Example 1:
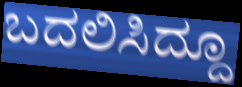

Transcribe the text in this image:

ಬದಲಿಸಿದ್ದೂ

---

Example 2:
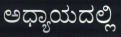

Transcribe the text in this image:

ಅಧ್ಯಾಯದಲ್ಲಿ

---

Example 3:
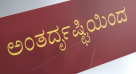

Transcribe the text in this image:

ಅಂತರ್ದೃಷ್ಟಿಯಿಂದ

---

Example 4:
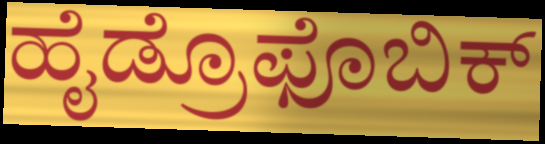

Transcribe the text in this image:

ಹೈಡ್ರೊಫೊಬಿಕ್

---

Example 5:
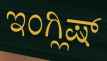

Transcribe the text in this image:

ಇಂಗ್ಲಿಷ್